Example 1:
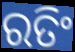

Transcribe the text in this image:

ରତିଂ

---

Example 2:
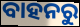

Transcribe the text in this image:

ବାହନରୁ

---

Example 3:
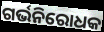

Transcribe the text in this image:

ଗର୍ଭନିରୋଧକ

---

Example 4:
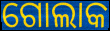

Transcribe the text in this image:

ଗୋଲାକ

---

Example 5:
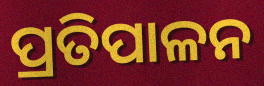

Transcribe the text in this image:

ପ୍ରତିପାଳନ